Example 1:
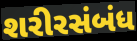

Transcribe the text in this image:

શરીરસંબંધ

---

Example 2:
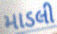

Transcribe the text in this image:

માડલી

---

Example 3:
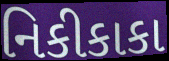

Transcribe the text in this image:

નિકીકાકા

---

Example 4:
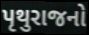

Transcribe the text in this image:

પૃથુરાજનો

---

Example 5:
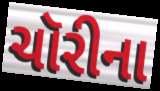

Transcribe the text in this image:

ચૉરીના